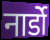
नार्डो